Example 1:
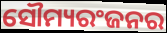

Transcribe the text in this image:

ସୌମ୍ୟରଂଜନର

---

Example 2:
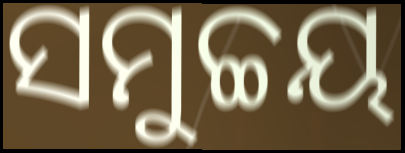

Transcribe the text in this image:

ସମୁଚ୍ଚୟ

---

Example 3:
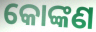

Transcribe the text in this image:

କୋଙ୍କଣ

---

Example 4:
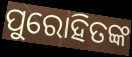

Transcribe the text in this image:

ପୁରୋହିତଙ୍କ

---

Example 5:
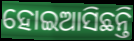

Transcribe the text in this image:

ହୋଇଆସିଛନ୍ତି